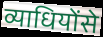
व्याधियोंसे